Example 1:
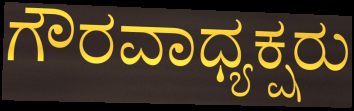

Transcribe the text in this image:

ಗೌರವಾಧ್ಯಕ್ಷರು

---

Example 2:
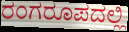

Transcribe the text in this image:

ರಂಗರೂಪದಲ್ಲಿ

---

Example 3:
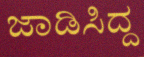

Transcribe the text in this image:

ಜಾಡಿಸಿದ್ದ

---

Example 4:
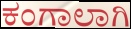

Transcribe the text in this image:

ಕಂಗಾಲಾಗಿ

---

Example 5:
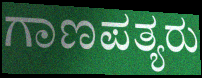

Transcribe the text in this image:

ಗಾಣಪತ್ಯರು